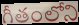
గీతంలోని